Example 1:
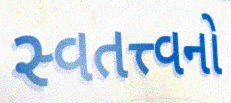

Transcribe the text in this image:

સ્વતત્ત્વનો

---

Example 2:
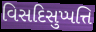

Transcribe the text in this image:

વિસદિસુપ્પત્તિ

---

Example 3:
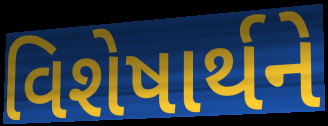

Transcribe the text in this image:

વિશેષાર્થને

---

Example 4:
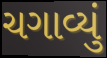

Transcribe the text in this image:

ચગાવ્યું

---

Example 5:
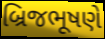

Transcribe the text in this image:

બ્રિજભૂષણે